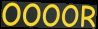
OOOOR